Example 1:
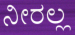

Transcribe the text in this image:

ನೀರಲ್ಲ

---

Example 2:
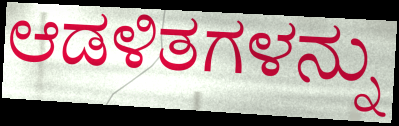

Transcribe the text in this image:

ಆಡಳಿತಗಳನ್ನು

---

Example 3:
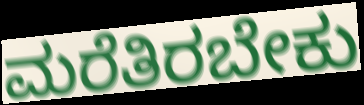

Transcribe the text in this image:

ಮರೆತಿರಬೇಕು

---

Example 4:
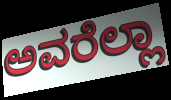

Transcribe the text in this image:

ಅವರೆಲ್ಲಾ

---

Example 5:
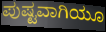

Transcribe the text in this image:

ಪುಷ್ಟವಾಗಿಯೂ